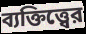
ব্যক্তিত্ত্বের